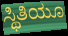
ಸ್ಥಿತಿಯೂ